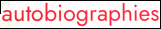
autobiographies